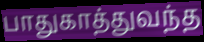
பாதுகாத்துவந்த